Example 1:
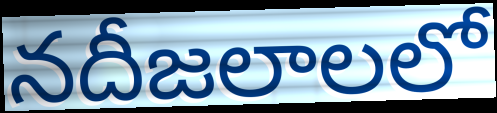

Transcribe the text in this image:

నదీజలాలలో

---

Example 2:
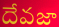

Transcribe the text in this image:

దేవజా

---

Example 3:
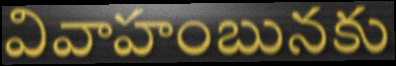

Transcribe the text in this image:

వివాహంబునకు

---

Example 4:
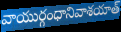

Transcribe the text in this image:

వాయుర్గంధానివాశయాత్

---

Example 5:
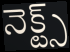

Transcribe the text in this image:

నెక్ట్స్